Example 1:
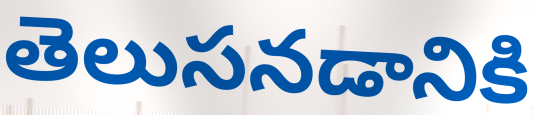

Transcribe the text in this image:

తెలుసనడానికి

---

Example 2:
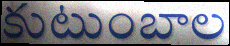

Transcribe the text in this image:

కుటుంబాల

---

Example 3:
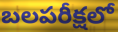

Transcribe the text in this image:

బలపరీక్షలో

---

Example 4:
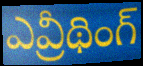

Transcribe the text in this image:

ఎవ్రీథింగ్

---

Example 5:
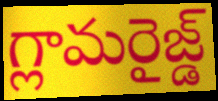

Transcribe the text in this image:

గ్లామరైజ్డ్